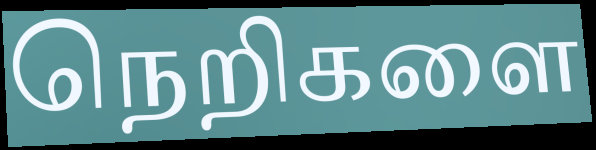
நெறிகளை